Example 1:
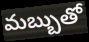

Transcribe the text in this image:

మబ్బుతో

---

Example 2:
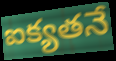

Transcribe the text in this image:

ఐక్యతనే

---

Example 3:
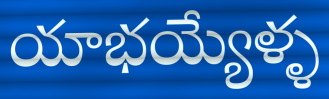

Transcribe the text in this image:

యాభయ్యేళ్ళ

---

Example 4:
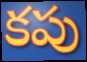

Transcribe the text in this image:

కపు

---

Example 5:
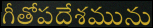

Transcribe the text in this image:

గీతోపదేశమును